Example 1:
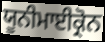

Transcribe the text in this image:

ਯੂਨੀਮਾਈਕ੍ਰੋਨ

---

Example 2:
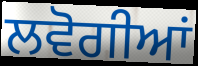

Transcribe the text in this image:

ਲਵੋਗੀਆਂ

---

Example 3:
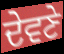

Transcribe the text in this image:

ਦੇਵਣੇ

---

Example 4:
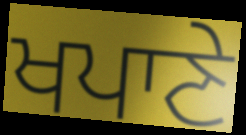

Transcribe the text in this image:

ਖਪਾਣੇ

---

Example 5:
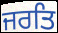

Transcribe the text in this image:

ਜਰਤਿ